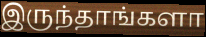
இருந்தாங்களா